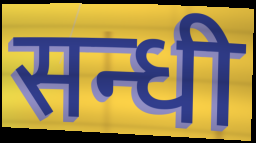
सन्धी